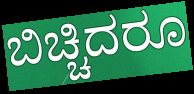
ಬಿಚ್ಚಿದರೂ